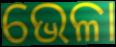
ଭେଳା